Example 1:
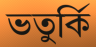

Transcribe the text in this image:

ভতুর্কি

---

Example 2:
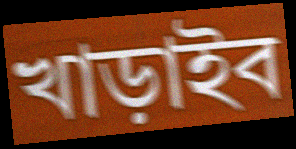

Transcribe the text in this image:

খাড়াইব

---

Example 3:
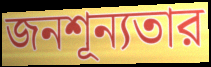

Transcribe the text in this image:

জনশূন্যতার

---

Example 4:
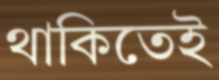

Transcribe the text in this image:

থাকিতেই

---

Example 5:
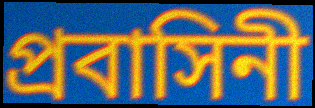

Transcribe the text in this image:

প্রবাসিনী